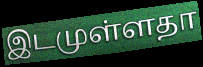
இடமுள்ளதா